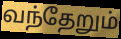
வந்தேறும்